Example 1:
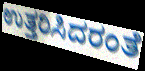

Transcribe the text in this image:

ಉತ್ತರಿಸಿದರಂತೆ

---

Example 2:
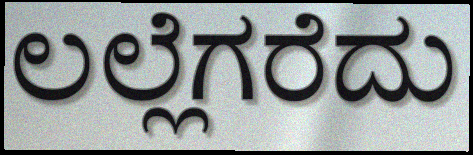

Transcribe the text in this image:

ಲಲ್ಲೆಗರೆದು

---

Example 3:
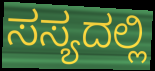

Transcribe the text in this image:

ಸಸ್ಯದಲ್ಲಿ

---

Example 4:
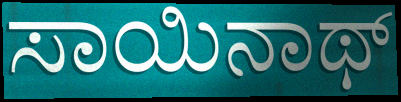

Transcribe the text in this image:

ಸಾಯಿನಾಥ್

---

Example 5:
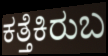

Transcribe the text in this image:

ಕತ್ತೆಕಿರುಬ